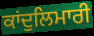
ਕਾਂਦੁਲਿਮਾਰੀ